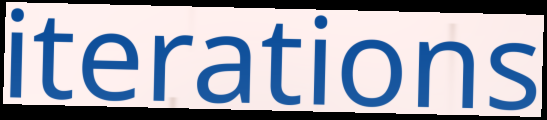
iterations